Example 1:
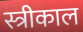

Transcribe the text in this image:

स्त्रीकाल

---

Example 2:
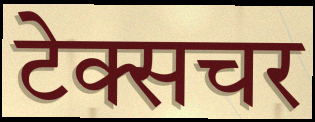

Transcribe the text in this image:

टेक्सचर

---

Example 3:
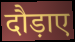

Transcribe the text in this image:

दौड़ाए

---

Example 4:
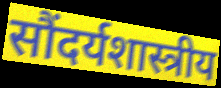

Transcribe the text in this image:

सौंदर्यशास्त्रीय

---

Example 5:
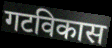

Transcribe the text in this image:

गटविकास